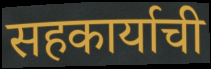
सहकार्याची